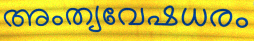
അംത്യവേഷധരം